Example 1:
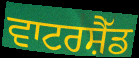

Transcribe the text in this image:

ਵਾਟਰਸ਼ੈੱਡ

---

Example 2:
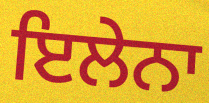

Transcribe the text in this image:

ਇਲੇਨਾ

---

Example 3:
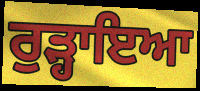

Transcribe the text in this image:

ਰੁੜ੍ਹਾਇਆ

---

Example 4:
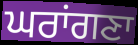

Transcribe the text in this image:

ਘਰਾਂਗਣਾ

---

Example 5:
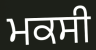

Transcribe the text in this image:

ਮਕਸੀ